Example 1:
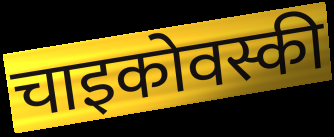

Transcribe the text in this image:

चाइकोवस्की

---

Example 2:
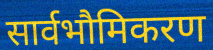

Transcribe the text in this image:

सार्वभौमिकरण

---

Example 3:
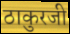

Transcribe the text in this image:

ठाकुरजी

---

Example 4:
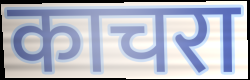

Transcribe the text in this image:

काचरा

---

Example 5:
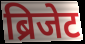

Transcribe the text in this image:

ब्रिजेट